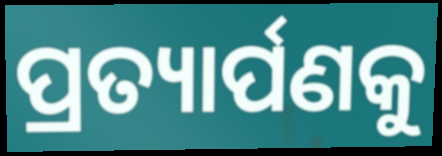
ପ୍ରତ୍ୟାର୍ପଣକୁ